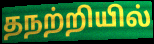
தநற்றியில்